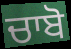
ਚਾਬੋ